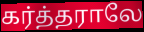
கர்த்தராலே